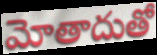
మోతాదుతో